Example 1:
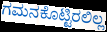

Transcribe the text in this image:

ಗಮನಕೊಟ್ಟಿರಲಿಲ್ಲ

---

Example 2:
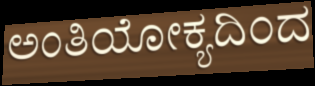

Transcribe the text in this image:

ಅಂತಿಯೋಕ್ಯದಿಂದ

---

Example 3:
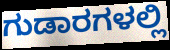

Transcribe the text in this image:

ಗುಡಾರಗಳಲ್ಲಿ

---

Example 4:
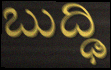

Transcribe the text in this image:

ಬುದ್ಢಿ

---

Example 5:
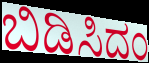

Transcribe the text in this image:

ಬಿಡಿಸಿದಂ